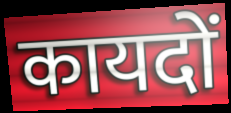
कायदों